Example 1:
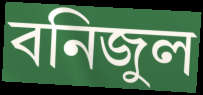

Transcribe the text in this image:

বনিজুল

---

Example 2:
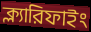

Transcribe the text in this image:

ক্ল্যারিফাইং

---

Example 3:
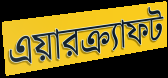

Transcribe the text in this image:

এয়ারক্র্যাফট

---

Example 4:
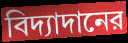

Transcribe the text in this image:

বিদ্যাদানের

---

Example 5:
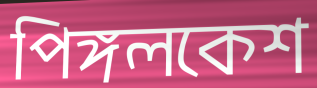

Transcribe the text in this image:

পিঙ্গলকেশ